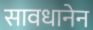
सावधानेन